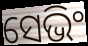
ସେଭିଂ